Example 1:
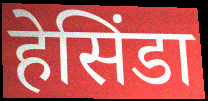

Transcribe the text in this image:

हेसिंडा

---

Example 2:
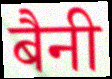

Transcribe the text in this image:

बैनी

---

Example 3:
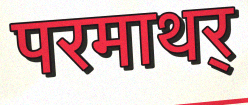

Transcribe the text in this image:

परमाथर्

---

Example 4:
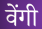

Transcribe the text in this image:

वेंगी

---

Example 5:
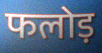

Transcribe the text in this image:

फलोड़